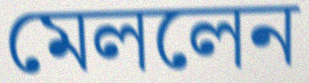
মেললেন